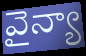
వైన్యా